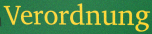
Verordnung